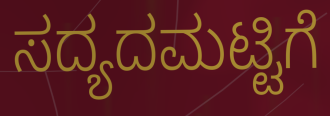
ಸದ್ಯದಮಟ್ಟಿಗೆ